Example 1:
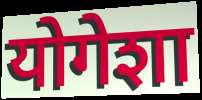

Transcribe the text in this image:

योगेशा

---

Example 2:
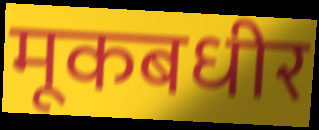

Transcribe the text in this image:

मूकबधीर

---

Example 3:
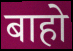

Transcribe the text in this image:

बाहो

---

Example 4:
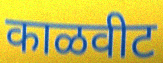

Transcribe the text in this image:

काळवीट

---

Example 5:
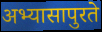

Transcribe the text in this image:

अभ्यासापुरते